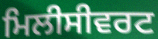
ਮਿਲੀਸੀਵਰਟ